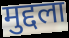
मुद्दला